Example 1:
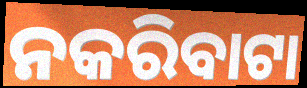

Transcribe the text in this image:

ନକରିବାଟା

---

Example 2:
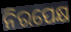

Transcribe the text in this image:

ନିରପେକ୍ଷ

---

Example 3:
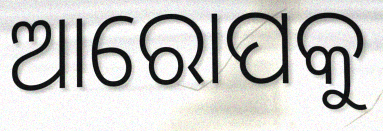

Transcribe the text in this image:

ଆରୋପକୁ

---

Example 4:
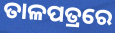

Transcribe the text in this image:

ତାଳପତ୍ରରେ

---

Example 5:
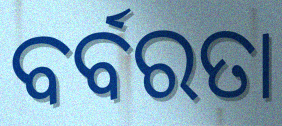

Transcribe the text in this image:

ବର୍ବରତା